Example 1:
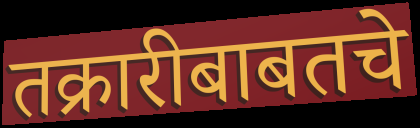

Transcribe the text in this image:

तक्रारीबाबतचे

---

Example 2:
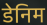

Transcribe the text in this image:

डेनिम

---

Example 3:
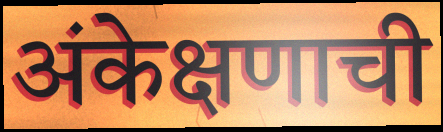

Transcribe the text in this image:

अंकेक्षणाची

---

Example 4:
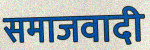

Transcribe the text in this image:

समाजवादी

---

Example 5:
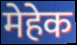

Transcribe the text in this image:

मेहेक